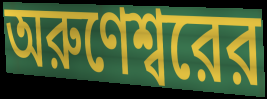
অরুণেশ্বরের